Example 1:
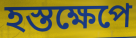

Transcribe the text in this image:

হস্তক্ষেপে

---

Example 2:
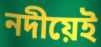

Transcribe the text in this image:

নদীয়েই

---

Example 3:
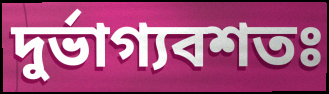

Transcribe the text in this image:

দুৰ্ভাগ্যবশতঃ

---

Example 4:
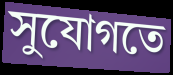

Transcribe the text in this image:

সুযোগতে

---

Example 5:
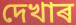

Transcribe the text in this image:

দেখাৰ